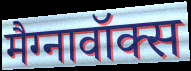
मैग्नावॉक्स